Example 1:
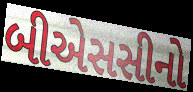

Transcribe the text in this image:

બીએસસીનો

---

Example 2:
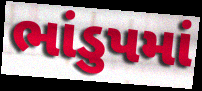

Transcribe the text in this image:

ભાંડુપમાં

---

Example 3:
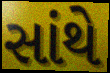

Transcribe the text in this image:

સાંથે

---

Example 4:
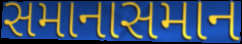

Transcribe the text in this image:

સમાનાસમાન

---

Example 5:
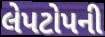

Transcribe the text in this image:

લેપટોપની